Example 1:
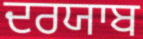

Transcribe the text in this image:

ਦਰਯਾਬ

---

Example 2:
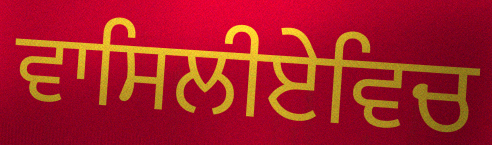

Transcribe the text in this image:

ਵਾਸਿਲੀਏਵਿਚ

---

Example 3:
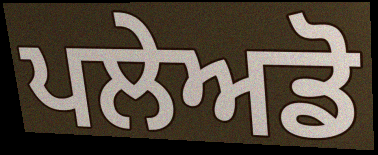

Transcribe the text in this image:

ਪਲੇਅਡੋ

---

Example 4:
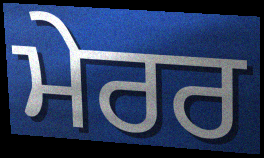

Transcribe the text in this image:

ਮੇਰਰ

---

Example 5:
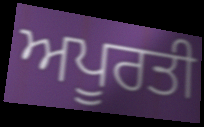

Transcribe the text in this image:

ਅਪੂਰਤੀ